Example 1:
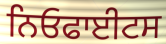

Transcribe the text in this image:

ਨਿਓਫਾਈਟਸ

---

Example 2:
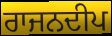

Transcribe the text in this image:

ਰਾਜਨਦੀਪ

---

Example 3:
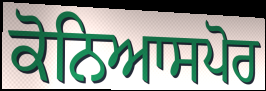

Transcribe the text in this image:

ਕੋਨਿਆਸਪੋਰ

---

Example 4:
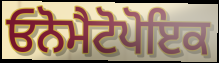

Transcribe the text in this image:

ਓਨੋਮੈਟੋਪੋਇਕ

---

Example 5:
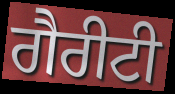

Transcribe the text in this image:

ਗੈਰੀਟੀ